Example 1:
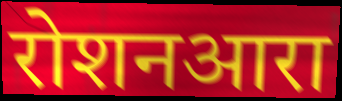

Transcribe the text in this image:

रोशनआरा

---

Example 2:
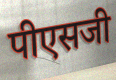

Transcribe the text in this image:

पीएसजी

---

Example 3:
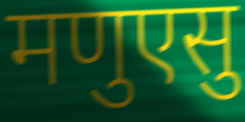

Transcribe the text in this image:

मणुएसु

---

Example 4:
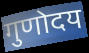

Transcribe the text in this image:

गुणोदय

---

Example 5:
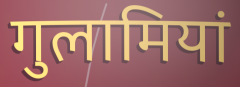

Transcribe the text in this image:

गुलामियां